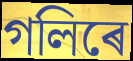
গলিৰে